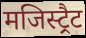
मजिस्ट्रैट